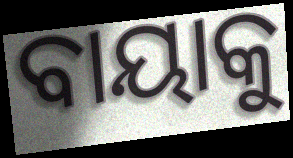
ବାୟାକୁ